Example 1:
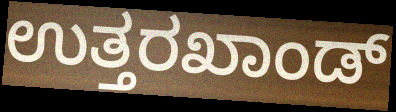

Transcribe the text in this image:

ಉತ್ತರಖಾಂಡ್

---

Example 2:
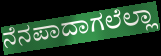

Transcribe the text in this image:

ನೆನಪಾದಾಗಲೆಲ್ಲಾ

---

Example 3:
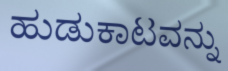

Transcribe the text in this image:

ಹುಡುಕಾಟವನ್ನು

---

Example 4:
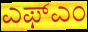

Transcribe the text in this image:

ಎಫ್ಎಂ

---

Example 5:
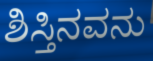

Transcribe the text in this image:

ಶಿಸ್ತಿನವನು